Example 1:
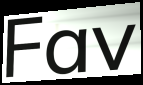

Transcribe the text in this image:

Fav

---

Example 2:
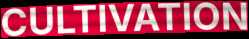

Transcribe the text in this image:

CULTIVATION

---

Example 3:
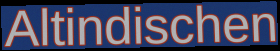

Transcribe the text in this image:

Altindischen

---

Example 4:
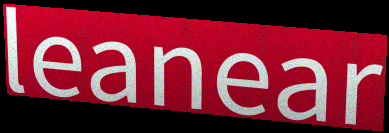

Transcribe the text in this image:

leanear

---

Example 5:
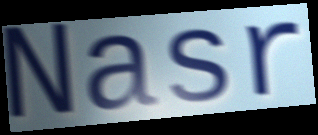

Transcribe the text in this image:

Nasr